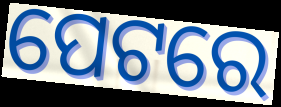
ପେଟରେ